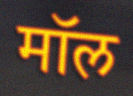
मॉल